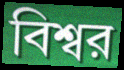
বিশ্বর